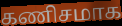
கணிசமாக